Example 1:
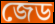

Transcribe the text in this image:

জেড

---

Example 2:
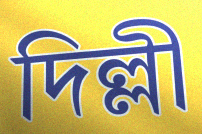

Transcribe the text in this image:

দিল্লী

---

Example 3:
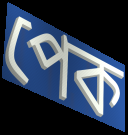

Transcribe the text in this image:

পেক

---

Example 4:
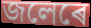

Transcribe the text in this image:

জলেৰে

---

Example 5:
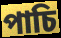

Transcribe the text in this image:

পাচি